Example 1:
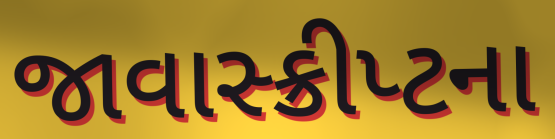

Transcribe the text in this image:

જાવાસ્ક્રીપ્ટના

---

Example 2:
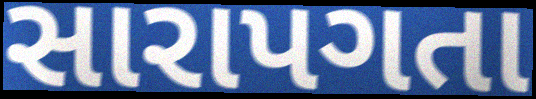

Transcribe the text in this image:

સારાપગતા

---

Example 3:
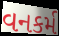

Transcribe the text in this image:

વનકર્મ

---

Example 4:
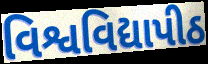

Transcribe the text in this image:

વિશ્વવિદ્યાપીઠ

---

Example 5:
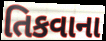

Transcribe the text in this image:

તિકવાના